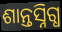
ଶାନ୍ତସ୍ନିଗ୍ଧ